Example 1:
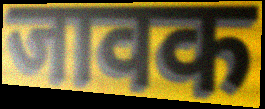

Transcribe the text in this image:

जावक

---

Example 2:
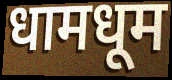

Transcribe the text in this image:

धामधूम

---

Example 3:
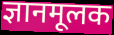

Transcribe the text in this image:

ज्ञानमूलक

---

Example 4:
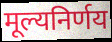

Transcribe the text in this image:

मूल्यनिर्णय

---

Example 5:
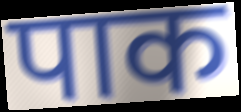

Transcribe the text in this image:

पाक